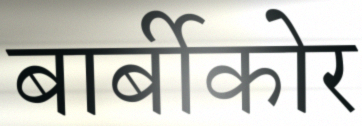
बार्बीकोर